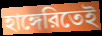
হাঙ্গেরিতেই